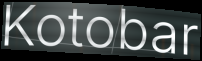
Kotobar